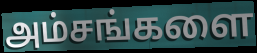
அம்சங்களை